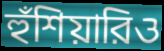
হুঁশিয়ারিও